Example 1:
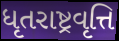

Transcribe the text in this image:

ધૃતરાષ્ટ્રવૃત્તિ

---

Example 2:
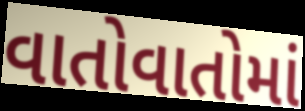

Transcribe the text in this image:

વાતોવાતોમાં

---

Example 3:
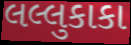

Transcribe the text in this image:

લલ્લુકાકા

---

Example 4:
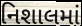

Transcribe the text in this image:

નિશાલમાં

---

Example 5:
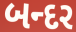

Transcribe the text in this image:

બન્દર